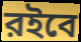
রইবে